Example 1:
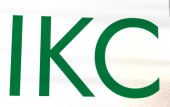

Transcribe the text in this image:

IKC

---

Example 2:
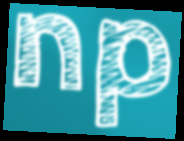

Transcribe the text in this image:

np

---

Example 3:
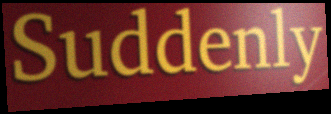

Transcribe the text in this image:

Suddenly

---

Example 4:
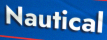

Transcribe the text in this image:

Nautical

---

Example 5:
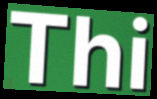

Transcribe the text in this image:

Thi